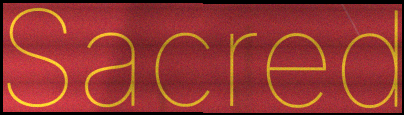
Sacred